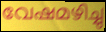
വേഷമഴിച്ചു